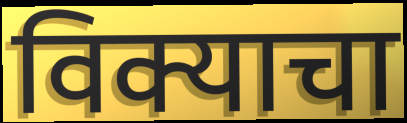
विक्याचा